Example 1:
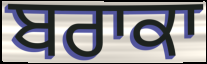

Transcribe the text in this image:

ਬਰਾਕਾ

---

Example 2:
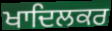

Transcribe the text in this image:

ਖਾਦਿਲਕਰ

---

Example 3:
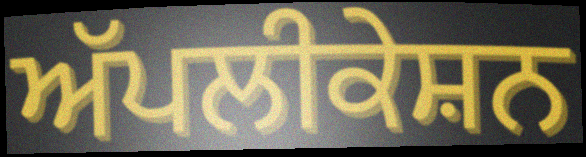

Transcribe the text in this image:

ਅੱਪਲੀਕੇਸ਼ਨ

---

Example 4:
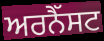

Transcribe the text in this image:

ਅਰਨੈੱਸਟ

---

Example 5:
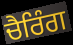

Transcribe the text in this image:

ਚੈਰਿੰਗ